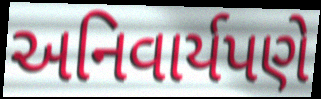
અનિવાર્યપણે